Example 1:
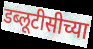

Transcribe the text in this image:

डब्लूटीसीच्या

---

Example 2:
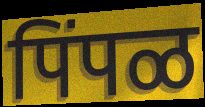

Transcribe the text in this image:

पिंपळ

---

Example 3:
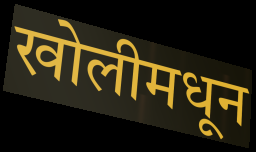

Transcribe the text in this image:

खोलीमधून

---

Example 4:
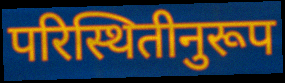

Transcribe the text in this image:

परिस्थितीनुरूप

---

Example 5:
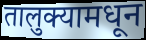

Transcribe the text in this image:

तालुक्यामधून